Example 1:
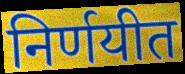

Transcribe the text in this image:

निर्णयीत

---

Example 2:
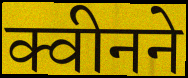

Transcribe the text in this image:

क्वीनने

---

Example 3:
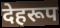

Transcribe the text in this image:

देहरूप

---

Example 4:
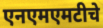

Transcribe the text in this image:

एनएमएमटीचे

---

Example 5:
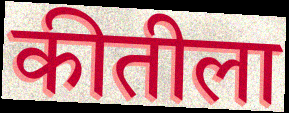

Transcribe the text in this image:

कीतीला